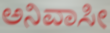
ಅನಿವಾಸೀ